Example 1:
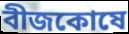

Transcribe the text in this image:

বীজকোষে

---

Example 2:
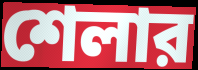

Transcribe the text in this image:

শেলার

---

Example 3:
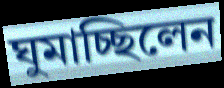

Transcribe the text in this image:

ঘুমাচ্ছিলেন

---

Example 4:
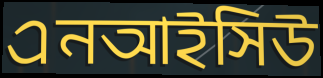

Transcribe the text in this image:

এনআইসিউ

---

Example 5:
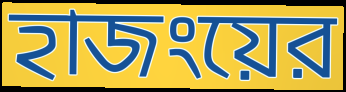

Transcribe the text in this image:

হাজংয়ের